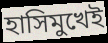
হাসিমুখেই